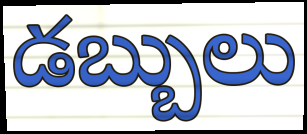
డబ్బులు